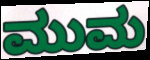
ಮುಮ